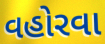
વહોરવા